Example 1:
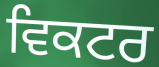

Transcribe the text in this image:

ਵਿਕਟਰ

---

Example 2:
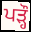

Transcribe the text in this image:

ਪੜ੍ਹੌ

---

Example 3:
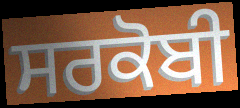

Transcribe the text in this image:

ਸਰਕੋਬੀ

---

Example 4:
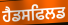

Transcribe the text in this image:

ਹੈਡਸਫਿਲਡ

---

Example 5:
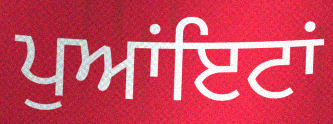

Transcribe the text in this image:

ਪੁਆਂਇਟਾਂ